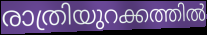
രാത്രിയുറക്കത്തിൽ